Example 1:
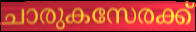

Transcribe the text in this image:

ചാരുകസേരക്ക്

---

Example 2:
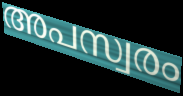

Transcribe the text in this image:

അപസ്വരം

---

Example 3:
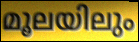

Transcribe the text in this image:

മൂലയിലും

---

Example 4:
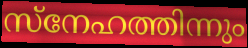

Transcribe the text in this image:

സ്നേഹത്തിന്നും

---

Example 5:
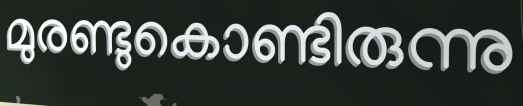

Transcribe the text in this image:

മുരണ്ടുകൊണ്ടിരുന്നു